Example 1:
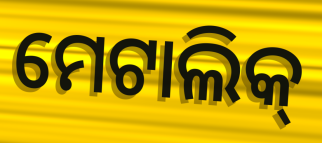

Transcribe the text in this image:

ମେଟାଲିକ୍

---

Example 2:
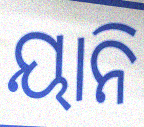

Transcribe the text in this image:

ୟାନି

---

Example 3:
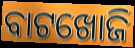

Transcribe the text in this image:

ବାଟଖୋଜି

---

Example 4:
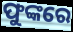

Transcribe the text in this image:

ଫୁଙ୍କରେ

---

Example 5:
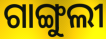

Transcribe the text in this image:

ଗାଙ୍ଗୁଲୀ